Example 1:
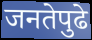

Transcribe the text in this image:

जनतेपुढे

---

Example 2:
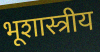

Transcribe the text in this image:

भूशास्त्रीय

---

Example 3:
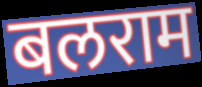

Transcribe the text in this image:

बलराम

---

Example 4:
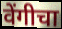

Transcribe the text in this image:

वेंगीचा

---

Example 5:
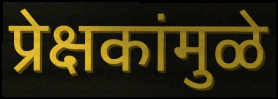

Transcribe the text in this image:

प्रेक्षकांमुळे